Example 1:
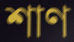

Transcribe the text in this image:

শাণ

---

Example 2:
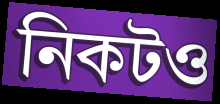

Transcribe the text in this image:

নিকটও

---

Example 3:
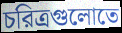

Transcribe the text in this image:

চরিত্রগুলোতে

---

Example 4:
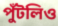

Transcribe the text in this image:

পুঁটলিও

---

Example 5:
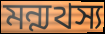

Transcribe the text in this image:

মন্মথস্য